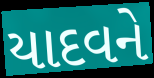
યાદવને